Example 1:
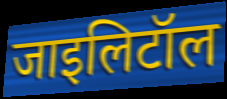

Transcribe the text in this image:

जाइलिटॉल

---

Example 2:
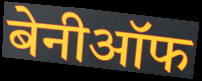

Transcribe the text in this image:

बेनीऑफ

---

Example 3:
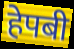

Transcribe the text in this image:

हेपबी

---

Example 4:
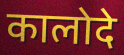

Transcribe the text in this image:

कालोदे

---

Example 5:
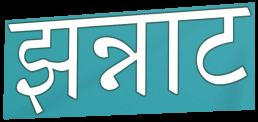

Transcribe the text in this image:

झन्नाट